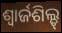
ଶ୍ୱାର୍ଜଶିଲ୍ଡ୍